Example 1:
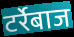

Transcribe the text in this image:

टर्रेबाज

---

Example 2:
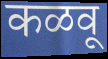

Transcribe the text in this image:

कळवू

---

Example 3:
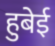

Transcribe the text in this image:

हुबेई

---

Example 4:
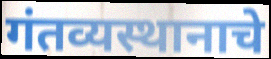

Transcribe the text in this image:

गंतव्यस्थानाचे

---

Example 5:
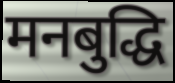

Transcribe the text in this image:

मनबुद्धि